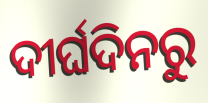
ଦୀର୍ଘଦିନରୁ